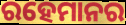
ରହେମାନର